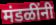
मंडळींनी